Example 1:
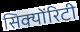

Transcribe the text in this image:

सिक्योंरिटी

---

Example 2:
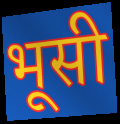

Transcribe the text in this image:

भूसी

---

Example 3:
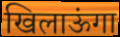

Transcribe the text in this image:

खिलाऊंगा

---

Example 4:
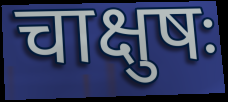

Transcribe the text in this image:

चाक्षुषः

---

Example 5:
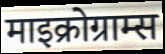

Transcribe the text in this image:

माइक्रोग्राम्स